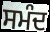
ਸਮੰਦ